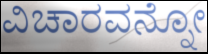
ವಿಚಾರವನ್ನೋ